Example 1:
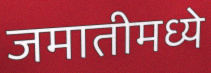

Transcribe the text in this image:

जमातीमध्ये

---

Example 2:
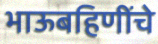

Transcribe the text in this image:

भाऊबहिणींचे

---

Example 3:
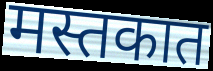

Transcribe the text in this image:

मस्तकात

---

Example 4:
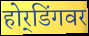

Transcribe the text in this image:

होर्डिंगवर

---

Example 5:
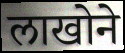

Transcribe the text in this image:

लाखोने